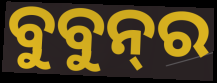
ବୁବୁନ୍‌ର